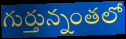
గుర్తున్నంతలో